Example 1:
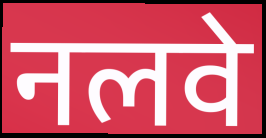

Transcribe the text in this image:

नलवे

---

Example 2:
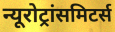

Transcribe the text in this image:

न्यूरोट्रांसमिटर्स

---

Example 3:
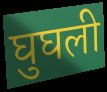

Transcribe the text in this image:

घुघली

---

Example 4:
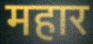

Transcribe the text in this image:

महार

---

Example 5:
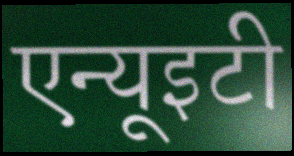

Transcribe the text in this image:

एन्यूइटी